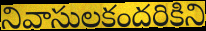
నివాసులకందరికిని